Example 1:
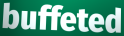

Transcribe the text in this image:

buffeted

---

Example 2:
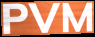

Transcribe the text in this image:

PVM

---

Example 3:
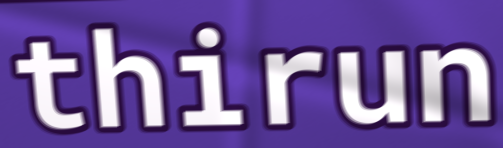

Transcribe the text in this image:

thirun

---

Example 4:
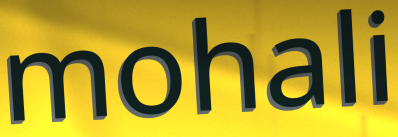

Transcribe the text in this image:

mohali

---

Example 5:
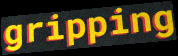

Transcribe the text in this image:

gripping